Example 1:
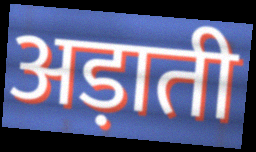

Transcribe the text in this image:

अड़ाती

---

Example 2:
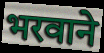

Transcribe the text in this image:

भरवाने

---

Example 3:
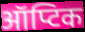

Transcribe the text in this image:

ऑप्टिक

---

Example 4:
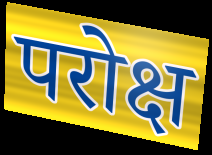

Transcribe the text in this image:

परोक्ष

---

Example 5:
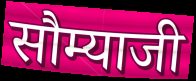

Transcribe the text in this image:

सौम्याजी